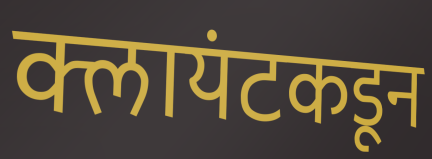
क्लायंटकडून